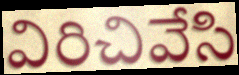
విరిచివేసి